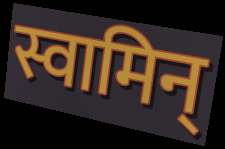
स्वामिन्